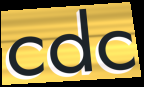
cdc